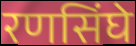
रणसिंघे